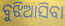
ବୁଝିଆସିବା